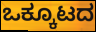
ಒಕ್ಕೂಟದ